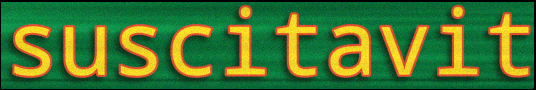
suscitavit